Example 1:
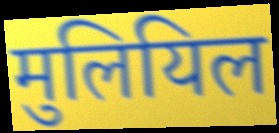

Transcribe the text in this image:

मुलियिल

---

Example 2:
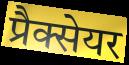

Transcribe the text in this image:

प्रैक्सेयर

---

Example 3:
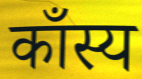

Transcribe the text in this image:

काँस्य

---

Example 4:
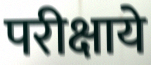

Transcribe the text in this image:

परीक्षाये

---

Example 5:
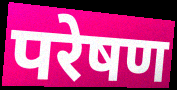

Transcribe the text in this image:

परेषण